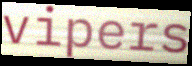
vipers